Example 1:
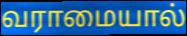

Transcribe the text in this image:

வராமையால்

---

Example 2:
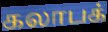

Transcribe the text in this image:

கலாபக்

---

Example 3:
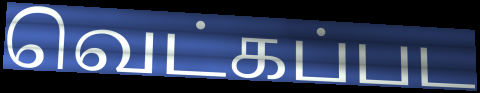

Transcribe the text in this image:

வெட்கப்பட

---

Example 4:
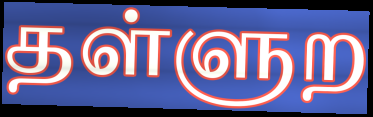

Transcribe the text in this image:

தள்ளுற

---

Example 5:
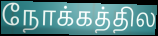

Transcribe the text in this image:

நோக்கத்தில